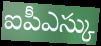
ఐపీఎస్కు